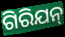
ଗିରିଯନ୍